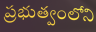
ప్రభుత్వంలోని